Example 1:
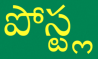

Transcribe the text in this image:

పోస్ట్ల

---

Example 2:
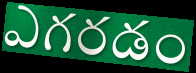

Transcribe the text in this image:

ఎగరడం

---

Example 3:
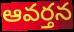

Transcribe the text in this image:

ఆవర్తన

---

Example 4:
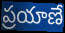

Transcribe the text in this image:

ప్రయాణే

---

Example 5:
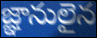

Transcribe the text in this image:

జ్ఞానులైన